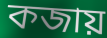
কজায়